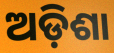
ଅଡ଼ିଶା